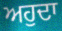
ਅਹੁਦਾ